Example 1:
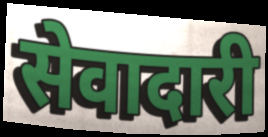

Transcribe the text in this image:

सेवादारी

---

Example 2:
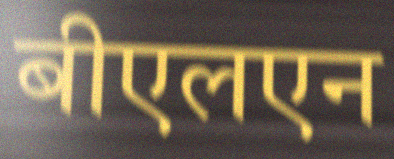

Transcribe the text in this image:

बीएलएन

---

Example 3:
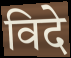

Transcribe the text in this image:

विदे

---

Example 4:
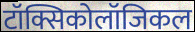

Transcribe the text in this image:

टॉक्सिकोलॉजिकल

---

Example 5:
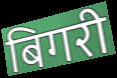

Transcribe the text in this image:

बिगरी